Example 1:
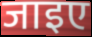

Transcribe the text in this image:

जाइए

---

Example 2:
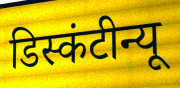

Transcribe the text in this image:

डिस्कंटीन्यू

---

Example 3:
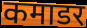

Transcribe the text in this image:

कमाडर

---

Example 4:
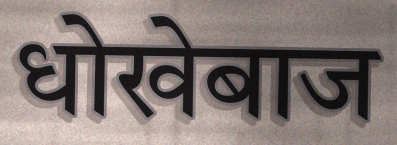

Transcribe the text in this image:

धोखेबाज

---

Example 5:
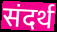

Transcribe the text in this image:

संदर्थ